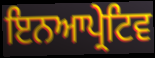
ਇਨਆਪ੍ਰੇਟਿਵ